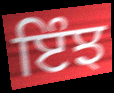
ਇੰਝ